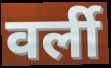
वर्ली